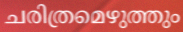
ചരിത്രമെഴുത്തും